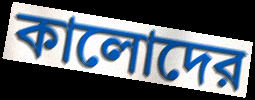
কালোদের